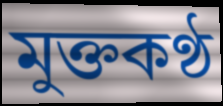
মুক্তকণ্ঠ